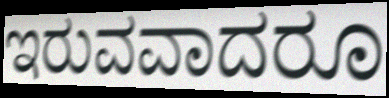
ಇರುವವಾದರೂ